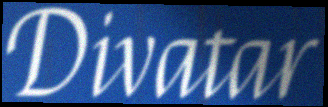
Divatar